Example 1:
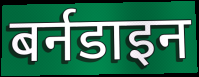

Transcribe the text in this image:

बर्नडाइन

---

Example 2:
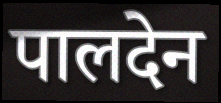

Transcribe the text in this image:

पालदेन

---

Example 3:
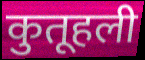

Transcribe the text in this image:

कुतूहली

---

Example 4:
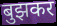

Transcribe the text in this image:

बुझकर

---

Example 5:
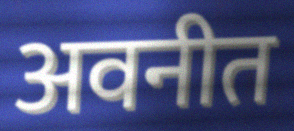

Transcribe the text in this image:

अवनीत